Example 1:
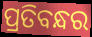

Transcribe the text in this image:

ପ୍ରତିବନ୍ଧର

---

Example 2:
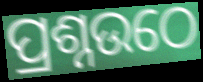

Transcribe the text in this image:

ପ୍ରଶ୍ନଉଠେ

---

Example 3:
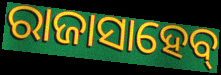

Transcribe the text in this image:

ରାଜାସାହେବ୍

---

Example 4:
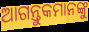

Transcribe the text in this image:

ଆଗନ୍ତୁକମାନଙ୍କୁ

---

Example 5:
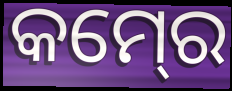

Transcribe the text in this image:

କମ୍‍ରେ